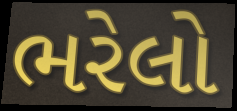
ભરેલો